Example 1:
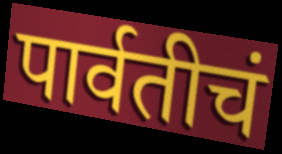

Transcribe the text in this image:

पार्वतीचं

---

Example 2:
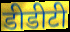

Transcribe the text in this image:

डीडीटी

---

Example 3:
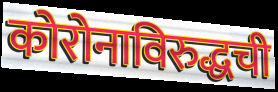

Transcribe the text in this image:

कोरोनाविरुद्धची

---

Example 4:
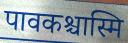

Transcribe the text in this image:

पावकश्चास्मि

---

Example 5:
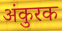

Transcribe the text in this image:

अंकुरक